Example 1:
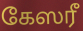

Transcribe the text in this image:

கேஸரீ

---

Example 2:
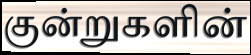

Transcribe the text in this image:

குன்றுகளின்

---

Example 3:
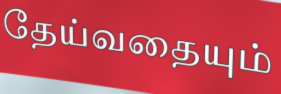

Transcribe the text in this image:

தேய்வதையும்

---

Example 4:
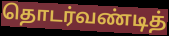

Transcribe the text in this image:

தொடர்வண்டித்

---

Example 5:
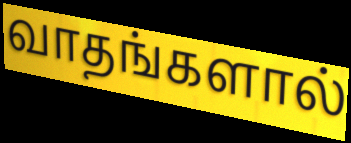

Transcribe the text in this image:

வாதங்களால்